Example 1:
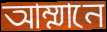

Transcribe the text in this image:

আম্মানে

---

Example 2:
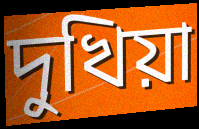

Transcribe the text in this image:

দুখিয়া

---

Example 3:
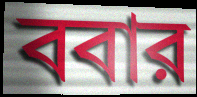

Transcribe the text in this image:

ববার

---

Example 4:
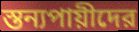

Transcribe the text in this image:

স্তন্যপায়ীদের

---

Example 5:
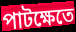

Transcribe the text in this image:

পাটক্ষেতে